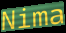
Nima